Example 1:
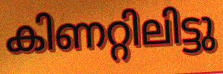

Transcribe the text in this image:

കിണറ്റിലിട്ടു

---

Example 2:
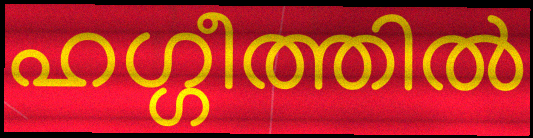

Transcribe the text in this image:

ഹഗ്ഗീത്തിൽ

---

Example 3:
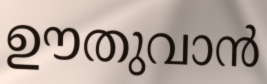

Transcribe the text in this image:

ഊതുവാൻ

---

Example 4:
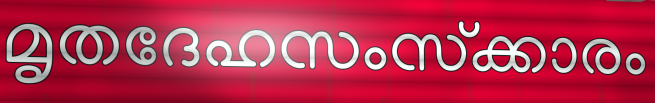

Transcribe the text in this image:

മൃതദേഹസംസ്‌ക്കാരം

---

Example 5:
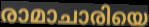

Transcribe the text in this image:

രാമാചാരിയെ